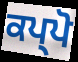
ਕਪ੍ਪੋ